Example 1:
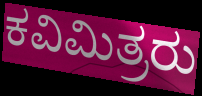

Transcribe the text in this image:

ಕವಿಮಿತ್ರರು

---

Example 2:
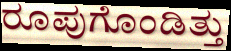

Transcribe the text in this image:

ರೂಪುಗೊಂಡಿತ್ತು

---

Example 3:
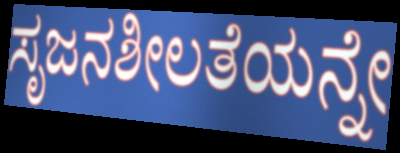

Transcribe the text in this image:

ಸೃಜನಶೀಲತೆಯನ್ನೇ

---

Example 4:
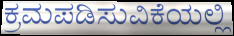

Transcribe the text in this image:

ಕ್ರಮಪಡಿಸುವಿಕೆಯಲ್ಲಿ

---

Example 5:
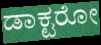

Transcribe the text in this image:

ಡಾಕ್ಟರೋ